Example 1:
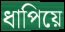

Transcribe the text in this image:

ধাপিয়ে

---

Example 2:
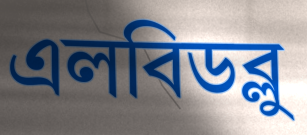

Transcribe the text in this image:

এলবিডব্লু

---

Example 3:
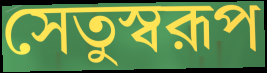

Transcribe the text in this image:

সেতুস্বরূপ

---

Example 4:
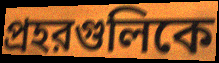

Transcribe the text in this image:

প্রহরগুলিকে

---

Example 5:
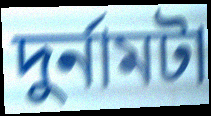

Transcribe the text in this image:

দুর্নামটা